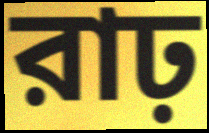
রাঢ়